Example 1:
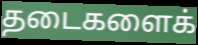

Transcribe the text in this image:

தடைகளைக்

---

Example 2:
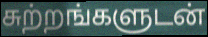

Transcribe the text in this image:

சுற்றங்களுடன்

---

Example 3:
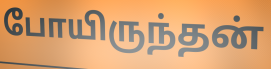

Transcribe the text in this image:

போயிருந்தன்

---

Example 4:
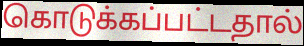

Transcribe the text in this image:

கொடுக்கப்பட்டதால்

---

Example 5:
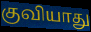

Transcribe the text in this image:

குவியாது